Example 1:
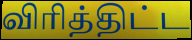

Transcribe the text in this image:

விரித்திட்ட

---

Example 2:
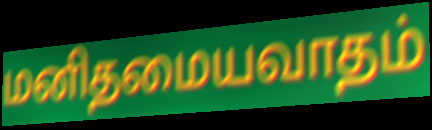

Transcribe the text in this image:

மனிதமையவாதம்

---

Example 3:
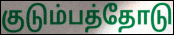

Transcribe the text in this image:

குடும்பத்தோடு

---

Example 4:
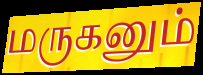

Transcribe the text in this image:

மருகனும்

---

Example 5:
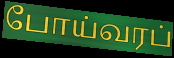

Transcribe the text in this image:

போய்வரப்